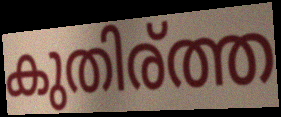
കുതിര്ത്ത